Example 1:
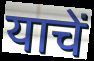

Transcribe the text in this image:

याचें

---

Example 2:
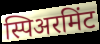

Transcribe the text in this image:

स्पिअरमिंट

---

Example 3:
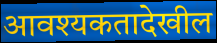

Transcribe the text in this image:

आवश्यकतादेखील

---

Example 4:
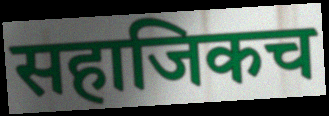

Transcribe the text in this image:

सहाजिकच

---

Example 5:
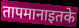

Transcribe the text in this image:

तापमानाइतके